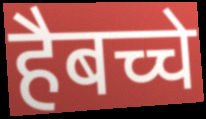
हैबच्चे